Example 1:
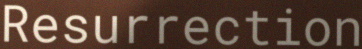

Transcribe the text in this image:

Resurrection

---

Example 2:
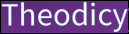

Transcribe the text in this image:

Theodicy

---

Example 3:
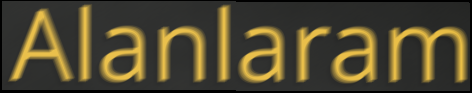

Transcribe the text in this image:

Alanlaram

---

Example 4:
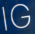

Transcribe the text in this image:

IG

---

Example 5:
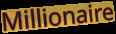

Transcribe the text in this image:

Millionaire